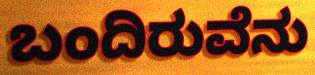
ಬಂದಿರುವೆನು